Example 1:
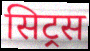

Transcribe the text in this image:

सिट्रस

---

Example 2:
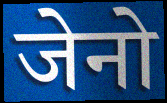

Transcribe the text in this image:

जेनो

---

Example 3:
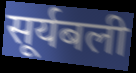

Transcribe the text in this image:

सूर्यबली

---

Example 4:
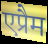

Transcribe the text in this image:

एप्रैम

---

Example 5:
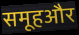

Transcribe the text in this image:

समूहऔर